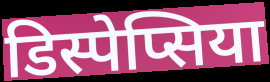
डिस्पेप्सिया